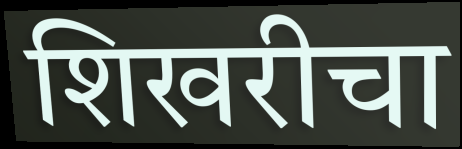
शिखरीचा